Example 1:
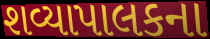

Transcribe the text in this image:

શવ્યાપાલકના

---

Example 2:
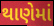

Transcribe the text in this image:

થાણેમાં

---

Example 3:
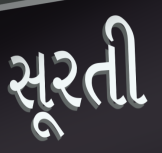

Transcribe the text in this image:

સૂરતી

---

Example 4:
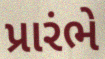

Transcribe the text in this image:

પ્રારંભે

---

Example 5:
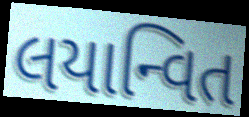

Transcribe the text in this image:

લયાન્વિત